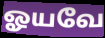
ஓயவே